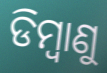
ଡିମ୍ବାଣୁ